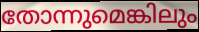
തോന്നുമെങ്കിലും